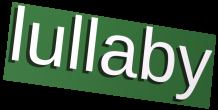
lullaby